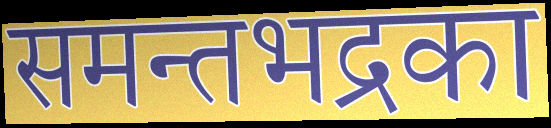
समन्तभद्रका